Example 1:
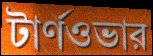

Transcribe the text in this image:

টার্ণওভার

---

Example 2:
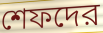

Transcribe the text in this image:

শেফদের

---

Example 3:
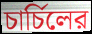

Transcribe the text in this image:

চার্চিলের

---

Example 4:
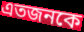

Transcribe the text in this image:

এতজনকে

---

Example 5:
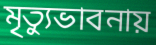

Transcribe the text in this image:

মৃত্যুভাবনায়